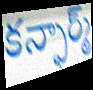
కన్ఫార్మ్